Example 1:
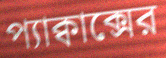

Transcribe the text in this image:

প্যাক্বাক্সের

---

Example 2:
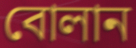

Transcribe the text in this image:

বোলান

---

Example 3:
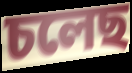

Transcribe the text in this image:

চলেছ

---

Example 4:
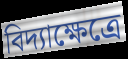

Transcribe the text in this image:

বিদ্যাক্ষেত্রে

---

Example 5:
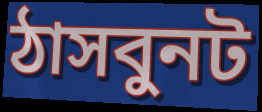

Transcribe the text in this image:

ঠাসবুনট